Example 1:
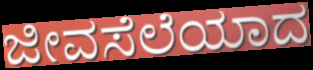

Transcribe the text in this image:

ಜೀವಸೆಲೆಯಾದ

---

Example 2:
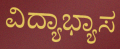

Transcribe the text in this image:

ವಿದ್ಯಾಭ್ಯಾಸ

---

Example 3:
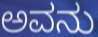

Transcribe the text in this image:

ಅವನು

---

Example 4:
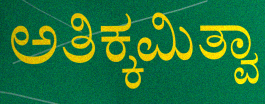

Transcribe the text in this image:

ಅತಿಕ್ಕಮಿತ್ವಾ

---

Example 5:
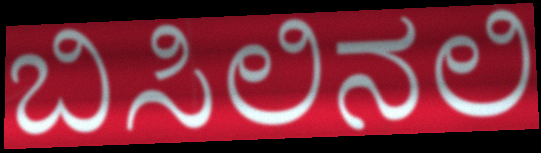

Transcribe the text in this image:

ಬಿಸಿಲಿನಲಿ